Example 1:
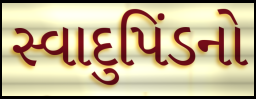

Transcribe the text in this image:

સ્વાદુપિંડનો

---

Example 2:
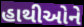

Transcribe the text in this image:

હાથીઓને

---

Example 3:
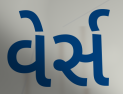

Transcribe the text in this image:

વેર્સ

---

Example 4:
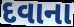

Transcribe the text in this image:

દવાના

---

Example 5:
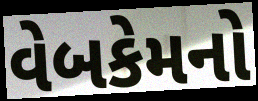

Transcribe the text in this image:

વેબકેમનો